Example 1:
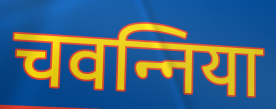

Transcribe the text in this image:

चवन्निया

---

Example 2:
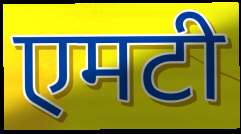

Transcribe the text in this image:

एमटी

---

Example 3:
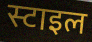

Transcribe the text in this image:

स्टाइल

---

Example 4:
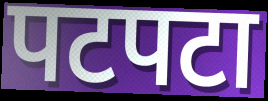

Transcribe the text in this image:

पटपटा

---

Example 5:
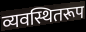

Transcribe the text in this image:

व्यवस्थितरूप